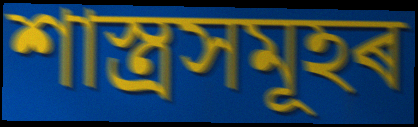
শাস্ত্ৰসমূহৰ